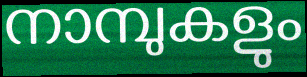
നാമ്പുകളും